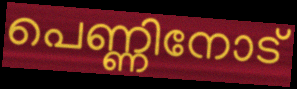
പെണ്ണിനോട്